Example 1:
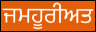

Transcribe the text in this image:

ਜਮਹੂਰੀਅਤ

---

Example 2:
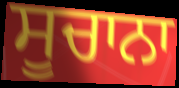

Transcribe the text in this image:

ਸੂਚਾਨਾ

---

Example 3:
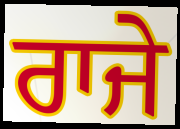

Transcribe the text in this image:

ਰਾਜੇ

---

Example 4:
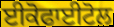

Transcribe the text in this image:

ਈਕੋਫਾਈਟੋਲ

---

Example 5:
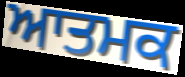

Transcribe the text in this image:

ਆਤਮਕ